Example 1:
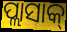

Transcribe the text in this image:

ପ୍ଲାସାକ୍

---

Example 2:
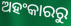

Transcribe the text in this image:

ଅହଂକାରରୁ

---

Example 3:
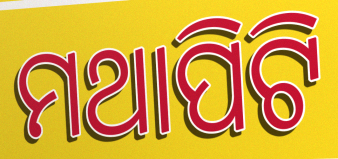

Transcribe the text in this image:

ମଥାପିଟି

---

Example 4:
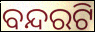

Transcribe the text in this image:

ବନ୍ଦରଟି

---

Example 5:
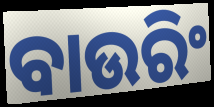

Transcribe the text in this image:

ବାଉରିଂ